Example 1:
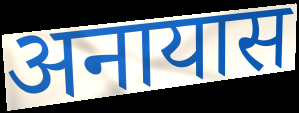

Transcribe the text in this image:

अनायास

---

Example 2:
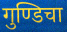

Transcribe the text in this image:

गुण्डिचा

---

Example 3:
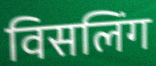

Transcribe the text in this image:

विसलिंग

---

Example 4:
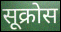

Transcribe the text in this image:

सूक्रोस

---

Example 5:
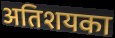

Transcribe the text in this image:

अतिशयका